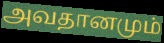
அவதானமும்